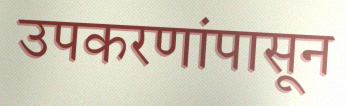
उपकरणांपासून